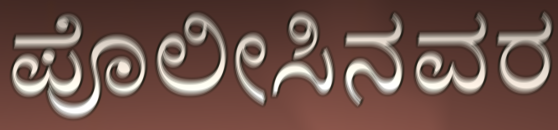
ಪೊಲೀಸಿನವರ